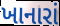
ખાનારાં